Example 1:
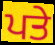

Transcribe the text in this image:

ਪਤੇ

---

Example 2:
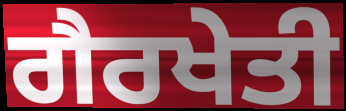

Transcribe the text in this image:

ਗੈਰਖੇਤੀ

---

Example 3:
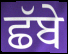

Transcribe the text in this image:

ਛੱਬੇ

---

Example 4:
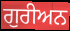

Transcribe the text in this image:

ਗੁਰੀਅਨ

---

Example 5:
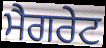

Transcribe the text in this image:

ਮੈਗਰੇਟ